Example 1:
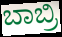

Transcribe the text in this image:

ಬಾಬ್ರಿ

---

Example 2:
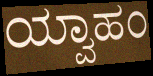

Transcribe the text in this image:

ಯ್ವಾಹಂ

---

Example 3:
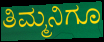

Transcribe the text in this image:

ತಿಮ್ಮನಿಗೂ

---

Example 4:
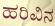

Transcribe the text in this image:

ಹರಿವಿನ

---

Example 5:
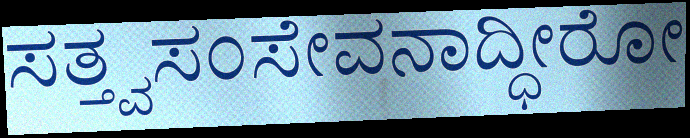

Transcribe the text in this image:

ಸತ್ತ್ವಸಂಸೇವನಾದ್ಧೀರೋ